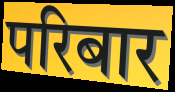
परिबार